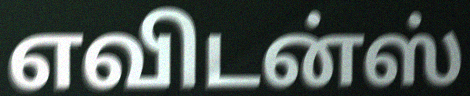
எவிடன்ஸ்